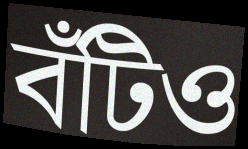
বঁটিও